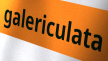
galericulata